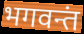
भगवन्तं